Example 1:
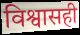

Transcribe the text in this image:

विश्वासही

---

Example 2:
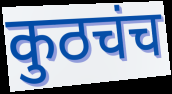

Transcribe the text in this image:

कुठचंच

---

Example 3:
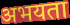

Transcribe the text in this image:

अभयता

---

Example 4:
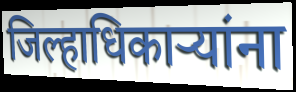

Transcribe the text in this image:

जिल्हाधिकाऱ्यांना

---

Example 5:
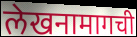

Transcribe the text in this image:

लेखनामागची